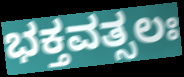
ಭಕ್ತವತ್ಸಲಃ